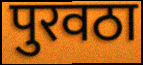
पुरवठा